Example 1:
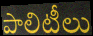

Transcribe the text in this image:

పాలిటీలు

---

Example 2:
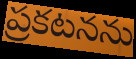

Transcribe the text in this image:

ప్రకటనను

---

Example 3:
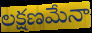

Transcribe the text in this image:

లక్షణమేనా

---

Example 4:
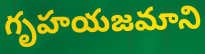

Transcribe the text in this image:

గృహయజమాని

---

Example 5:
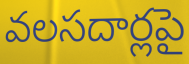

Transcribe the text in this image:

వలసదార్లపై